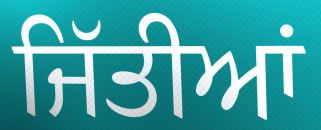
ਜਿੱਤੀਆਂ